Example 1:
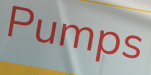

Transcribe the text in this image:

Pumps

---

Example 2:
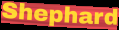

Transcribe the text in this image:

Shephard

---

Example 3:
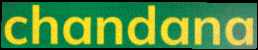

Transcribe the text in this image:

chandana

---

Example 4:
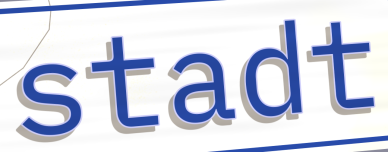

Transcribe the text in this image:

stadt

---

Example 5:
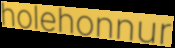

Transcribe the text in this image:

holehonnur